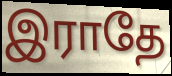
இராதே